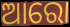
ଆରୋ